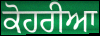
ਕੋਹਰੀਆ